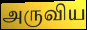
அருவிய